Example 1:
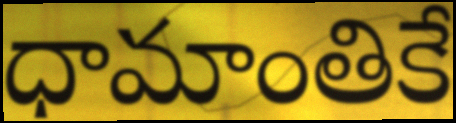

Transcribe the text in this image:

ధామాంతికే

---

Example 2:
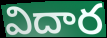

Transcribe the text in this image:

విదార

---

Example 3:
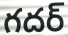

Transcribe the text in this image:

గదర్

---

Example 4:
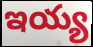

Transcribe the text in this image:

ఇయ్య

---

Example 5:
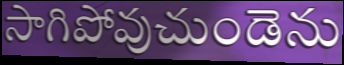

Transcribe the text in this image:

సాగిపోవుచుండెను